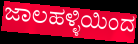
ಜಾಲಹಳ್ಳಿಯಿಂದ